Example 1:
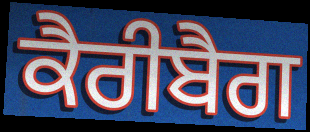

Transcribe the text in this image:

ਕੈਰੀਬੈਗ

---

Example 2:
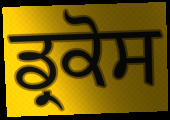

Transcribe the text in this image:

ਡ੍ਰਕੋਸ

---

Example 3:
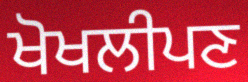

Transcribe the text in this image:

ਖੋਖਲੀਪਣ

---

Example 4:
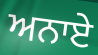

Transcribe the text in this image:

ਅਨਾਏ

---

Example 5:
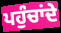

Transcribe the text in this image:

ਪਹੁੰਚਾਂਦੇ